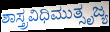
ಶಾಸ್ತ್ರವಿಧಿಮುತ್ಸೃಜ್ಯ